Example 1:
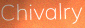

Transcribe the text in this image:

Chivalry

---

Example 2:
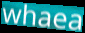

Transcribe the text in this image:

whaea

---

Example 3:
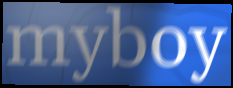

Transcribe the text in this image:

myboy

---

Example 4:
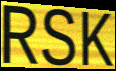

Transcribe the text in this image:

RSK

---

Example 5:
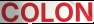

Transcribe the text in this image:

COLON